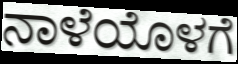
ನಾಳೆಯೊಳಗೆ